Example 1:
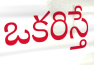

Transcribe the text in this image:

ఒకరిస్తే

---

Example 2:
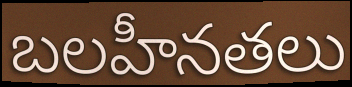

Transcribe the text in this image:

బలహీనతలు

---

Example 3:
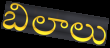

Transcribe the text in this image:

బిలాలు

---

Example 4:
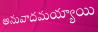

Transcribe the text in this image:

అనువాదమయ్యాయి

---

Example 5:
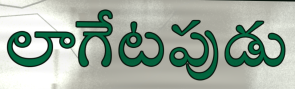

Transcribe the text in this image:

లాగేటపుడు